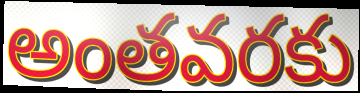
అంతవరకు